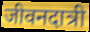
जीवनदात्री